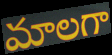
మాలగా